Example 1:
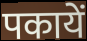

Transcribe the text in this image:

पकायें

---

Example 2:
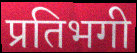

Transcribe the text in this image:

प्रतिभगी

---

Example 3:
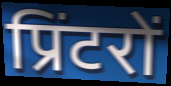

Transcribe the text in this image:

प्रिंटरों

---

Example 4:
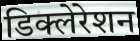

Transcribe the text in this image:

डिक्लेरेशन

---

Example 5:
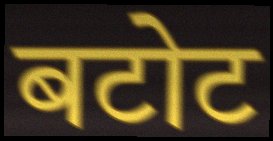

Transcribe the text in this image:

बटोट